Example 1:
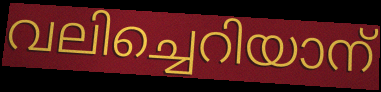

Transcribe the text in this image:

വലിച്ചെറിയാന്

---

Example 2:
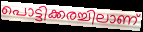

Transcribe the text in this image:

പൊട്ടിക്കരച്ചിലാണ്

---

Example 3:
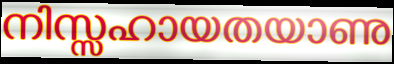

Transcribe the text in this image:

നിസ്സഹായതയാണു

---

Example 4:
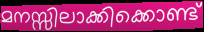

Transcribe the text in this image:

മനസ്സിലാക്കിക്കൊണ്ട്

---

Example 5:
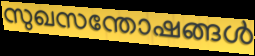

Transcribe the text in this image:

സുഖസന്തോഷങ്ങൾ